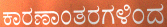
ಕಾರಣಾಂತರಗಳಿಂದ